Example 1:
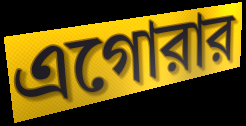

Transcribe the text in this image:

এগোরার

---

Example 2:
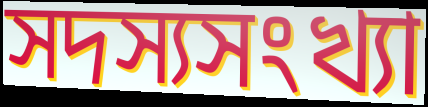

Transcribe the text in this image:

সদস্যসংখ্যা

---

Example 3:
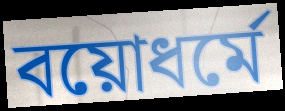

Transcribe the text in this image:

বয়োধর্মে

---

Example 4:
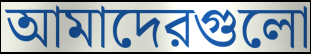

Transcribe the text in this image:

আমাদেরগুলো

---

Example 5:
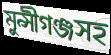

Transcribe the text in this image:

মুন্সীগঞ্জসহ